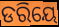
ଡରିୟେ